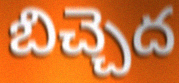
బిచ్చెద